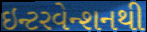
ઇન્ટરવેન્શનથી